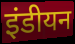
इंडीयन